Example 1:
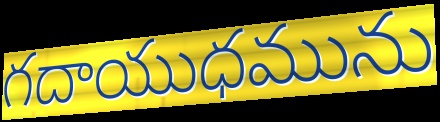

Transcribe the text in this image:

గదాయుధమును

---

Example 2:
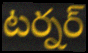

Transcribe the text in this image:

టర్నర్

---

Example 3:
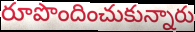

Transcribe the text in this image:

రూపొందించుకున్నారు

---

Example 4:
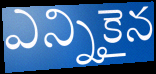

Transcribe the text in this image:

ఎన్నికైన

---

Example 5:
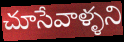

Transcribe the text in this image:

చూసేవాళ్ళని